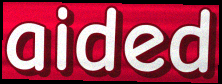
aided